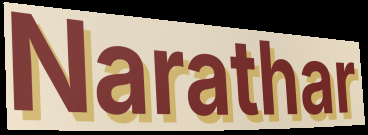
Narathar